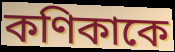
কণিকাকে